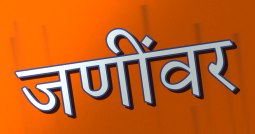
जणींवर